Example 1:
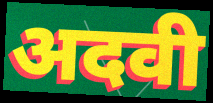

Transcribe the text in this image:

अदवी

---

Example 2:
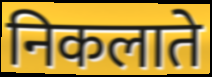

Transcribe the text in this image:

निकलाते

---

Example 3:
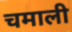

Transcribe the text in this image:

चमाली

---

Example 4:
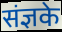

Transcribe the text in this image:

संज्ञके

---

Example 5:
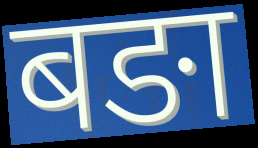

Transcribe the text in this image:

बङा